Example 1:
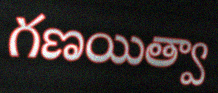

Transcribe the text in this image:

గణయిత్వా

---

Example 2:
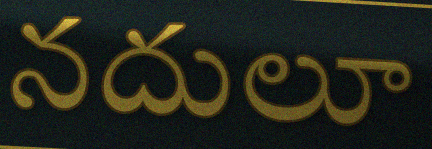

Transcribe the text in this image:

నదులూ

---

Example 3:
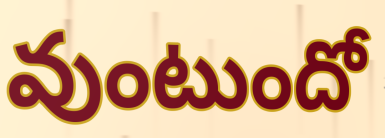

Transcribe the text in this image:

వుంటుందో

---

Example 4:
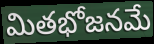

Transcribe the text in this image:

మితభోజనమే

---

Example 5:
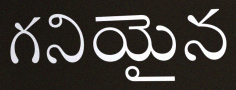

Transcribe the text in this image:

గనియైన